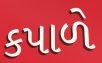
કપાળે